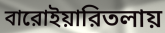
বারোইয়ারিতলায়